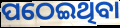
ପଠେଇଥିବା